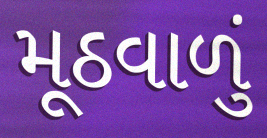
મૂઠવાળું